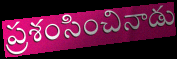
ప్రశంసించినాడు